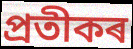
প্ৰতীকৰ